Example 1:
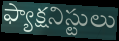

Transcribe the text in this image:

ఫ్యాక్షనిస్టులు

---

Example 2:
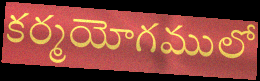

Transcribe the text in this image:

కర్మయోగములో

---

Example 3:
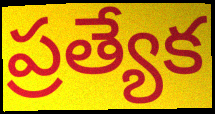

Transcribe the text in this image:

ప్రత్యేక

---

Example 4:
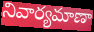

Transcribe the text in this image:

నివార్యమాణా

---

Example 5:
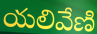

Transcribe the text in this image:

యలివేణి